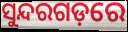
ସୁନ୍ଦରଗଡ଼ରେ